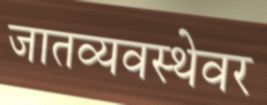
जातव्यवस्थेवर